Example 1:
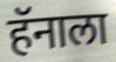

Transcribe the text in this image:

हॅनाला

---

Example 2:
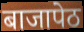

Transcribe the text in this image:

बाजापेठ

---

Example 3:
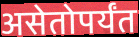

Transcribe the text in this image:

असेतोपर्यंत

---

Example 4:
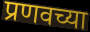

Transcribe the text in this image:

प्रणवच्या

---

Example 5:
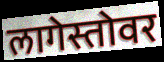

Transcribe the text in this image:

लागेस्तोवर